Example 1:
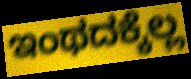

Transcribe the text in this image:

ಇಂಥದಕ್ಕೆಲ್ಲ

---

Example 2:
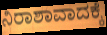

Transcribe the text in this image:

ನಿರಾಶಾವಾದಕ್ಕೆ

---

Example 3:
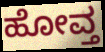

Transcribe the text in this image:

ಹೋವ್ತ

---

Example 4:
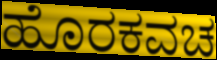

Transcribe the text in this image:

ಹೊರಕವಚ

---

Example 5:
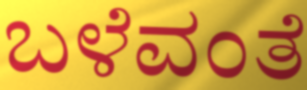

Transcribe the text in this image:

ಬಳೆವಂತೆ